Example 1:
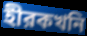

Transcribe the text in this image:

হীরকখনি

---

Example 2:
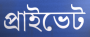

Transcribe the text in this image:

প্রাইভেট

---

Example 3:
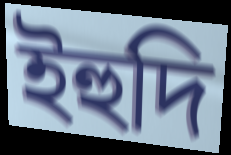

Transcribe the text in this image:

ইহুদি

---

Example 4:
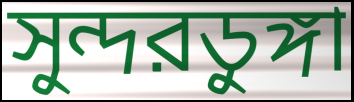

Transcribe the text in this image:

সুন্দরডুঙ্গা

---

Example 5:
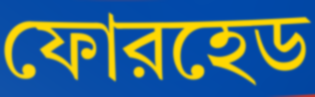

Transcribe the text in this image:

ফোরহেড